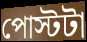
পোস্টটা